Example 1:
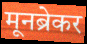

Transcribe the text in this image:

मूनब्रेकर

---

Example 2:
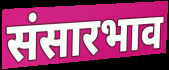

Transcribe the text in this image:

संसारभाव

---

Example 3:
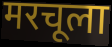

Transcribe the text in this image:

मरचूला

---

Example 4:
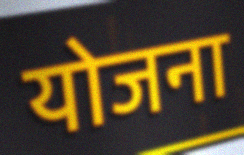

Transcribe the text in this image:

योजना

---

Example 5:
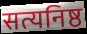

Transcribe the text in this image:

सत्यनिष्ठ